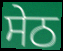
ਸੇਠ